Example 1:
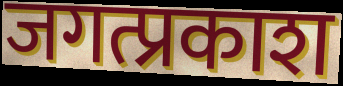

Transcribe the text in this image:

जगत्प्रकाश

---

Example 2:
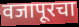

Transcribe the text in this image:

वजापूरचा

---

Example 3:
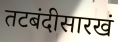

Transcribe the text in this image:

तटबंदीसारखं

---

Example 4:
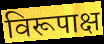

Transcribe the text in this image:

विरूपाक्ष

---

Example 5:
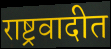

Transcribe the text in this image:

राष्ट्रवादीत